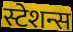
स्टेशन्स